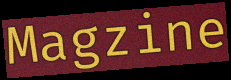
Magzine